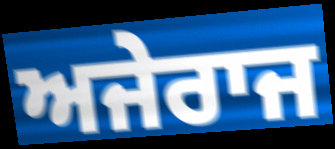
ਅਜੇਰਾਜ